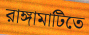
রাঙ্গামাটিতে